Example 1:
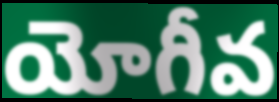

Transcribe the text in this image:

యోగీవ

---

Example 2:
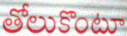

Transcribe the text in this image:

తోలుకొంటూ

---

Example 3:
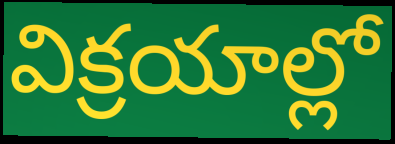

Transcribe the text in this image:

విక్రయాల్లో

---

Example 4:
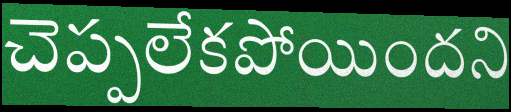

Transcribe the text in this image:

చెప్పలేకపోయిందని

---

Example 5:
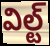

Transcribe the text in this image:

విల్ట్